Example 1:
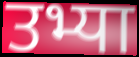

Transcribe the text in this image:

उभ्या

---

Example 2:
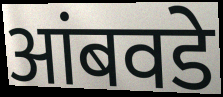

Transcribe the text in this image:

आंबवडे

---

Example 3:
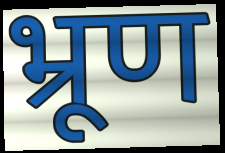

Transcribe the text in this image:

भ्रूण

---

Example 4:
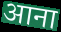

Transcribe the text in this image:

आना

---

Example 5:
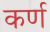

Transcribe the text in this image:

कर्ण